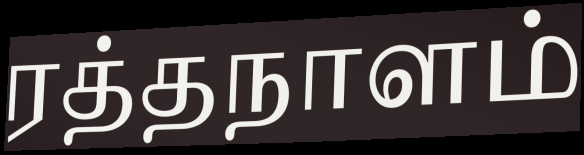
ரத்தநாளம்